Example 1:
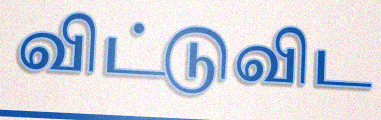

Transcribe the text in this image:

விட்டுவிட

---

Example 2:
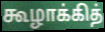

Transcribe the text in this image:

கூழாக்கித்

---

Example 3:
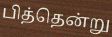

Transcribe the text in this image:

பித்தென்று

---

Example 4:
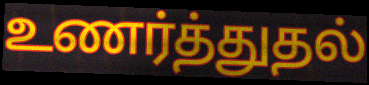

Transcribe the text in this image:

உணர்த்துதல்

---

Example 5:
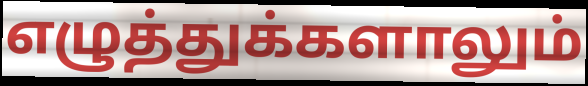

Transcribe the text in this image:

எழுத்துக்களாலும்